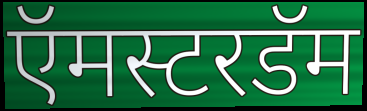
ऍमस्टरडॅम